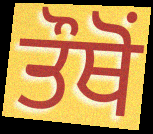
ਤੌਥੋਂ